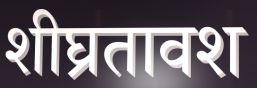
शीघ्रतावश